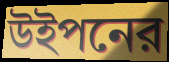
উইপনের